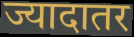
ज्‍यादातर